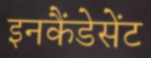
इनकैंडेसेंट